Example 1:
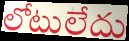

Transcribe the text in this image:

లోటులేదు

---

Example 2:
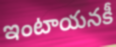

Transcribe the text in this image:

ఇంటాయనకీ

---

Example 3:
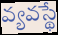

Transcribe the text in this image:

వ్యవస్థే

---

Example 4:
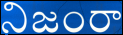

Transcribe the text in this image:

నిజంరా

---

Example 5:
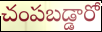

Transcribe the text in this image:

చంపబడ్డారో